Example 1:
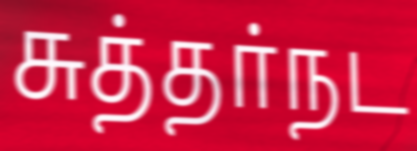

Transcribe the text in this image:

சுத்தர்நட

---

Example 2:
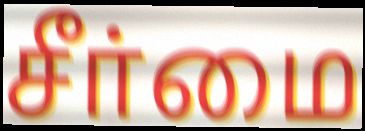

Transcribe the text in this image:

சீர்மை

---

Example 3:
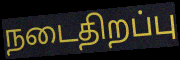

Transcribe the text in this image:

நடைதிறப்பு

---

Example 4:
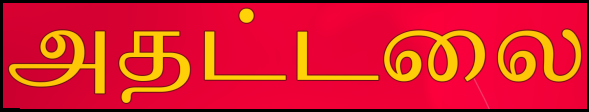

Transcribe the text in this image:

அதட்டலை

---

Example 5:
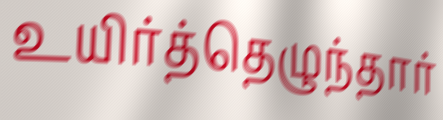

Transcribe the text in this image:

உயிர்த்தெழுந்தார்